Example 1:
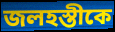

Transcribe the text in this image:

জলহস্তীকে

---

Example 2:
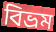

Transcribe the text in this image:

বিভ্রম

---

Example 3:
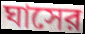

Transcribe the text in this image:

ঘাসের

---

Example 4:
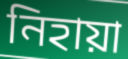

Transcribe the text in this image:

নিহায়া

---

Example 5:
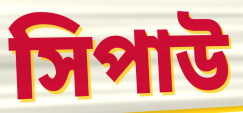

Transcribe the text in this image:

সিপাউ